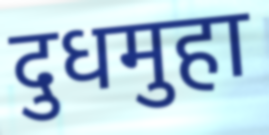
दुधमुहा